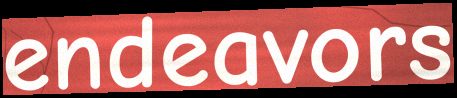
endeavors